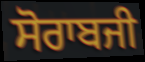
ਸੋਰਾਬਜੀ